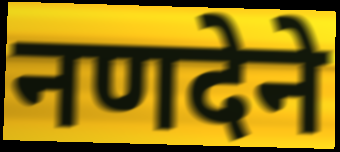
नणदेने